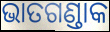
ଭାତଗଣ୍ଡାକ